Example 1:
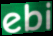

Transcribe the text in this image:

ebi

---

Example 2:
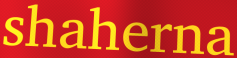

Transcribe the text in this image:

shaherna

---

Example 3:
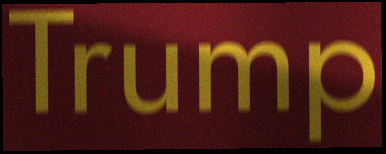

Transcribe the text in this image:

Trump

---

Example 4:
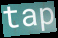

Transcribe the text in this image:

tap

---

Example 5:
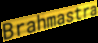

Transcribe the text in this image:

Brahmastra